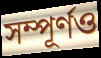
সম্পূর্ণও